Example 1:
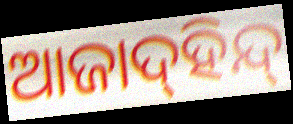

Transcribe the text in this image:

ଆଜାଦ୍‍ହିନ୍ଦ୍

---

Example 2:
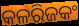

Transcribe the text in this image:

କଳରିଜକଂ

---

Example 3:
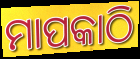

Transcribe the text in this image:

ମାପକାଠି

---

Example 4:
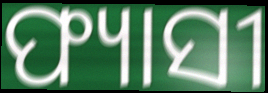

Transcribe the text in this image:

ଫ୍ୟାସୀ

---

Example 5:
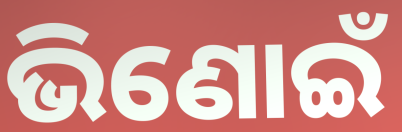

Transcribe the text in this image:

ଭିଣୋଇଁ